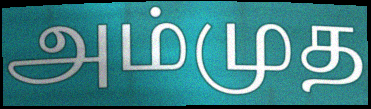
அம்முத